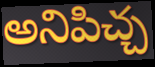
అనిపిచ్చ